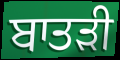
ਬਾਤੜੀ